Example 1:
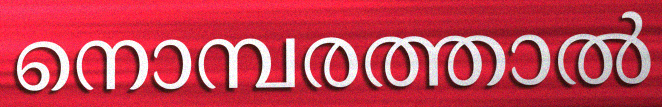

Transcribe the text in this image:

നൊമ്പരത്താൽ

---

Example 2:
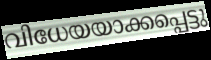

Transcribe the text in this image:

വിധേയയാക്കപ്പെട്ടു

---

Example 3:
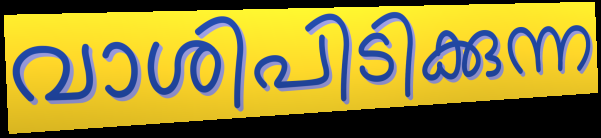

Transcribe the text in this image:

വാശിപിടിക്കുന്ന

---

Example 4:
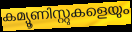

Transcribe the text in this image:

കമ്യൂണിസ്റ്റുകളെയും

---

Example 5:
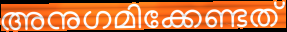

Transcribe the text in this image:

അനുഗമിക്കേണ്ടത്